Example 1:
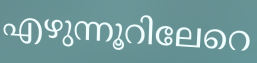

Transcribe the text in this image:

എഴുന്നൂറിലേറെ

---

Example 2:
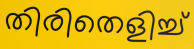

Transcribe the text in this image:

തിരിതെളിച്ച്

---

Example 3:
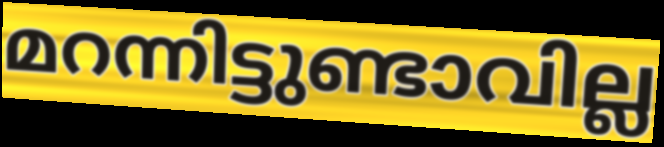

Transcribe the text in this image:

മറന്നിട്ടുണ്ടാവില്ല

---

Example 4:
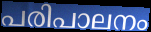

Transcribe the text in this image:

പരിപാലനം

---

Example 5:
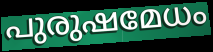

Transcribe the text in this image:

പുരുഷമേധം